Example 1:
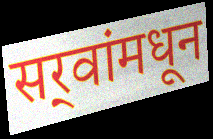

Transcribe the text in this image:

सर्वांमधून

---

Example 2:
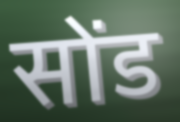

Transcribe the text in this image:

सोंड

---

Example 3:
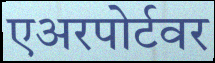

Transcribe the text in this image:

एअरपोर्टवर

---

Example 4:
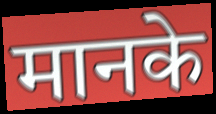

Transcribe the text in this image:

मानके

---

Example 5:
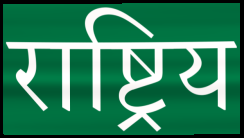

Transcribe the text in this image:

राष्ट्रिय